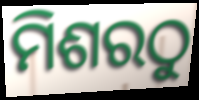
ମିଶରଠୁ